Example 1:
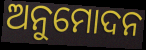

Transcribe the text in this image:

ଅନୁମୋଦନ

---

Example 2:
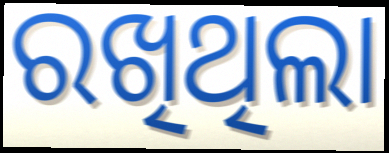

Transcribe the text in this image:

ରଖିଥିଲା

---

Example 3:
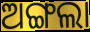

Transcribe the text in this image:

ଅଙ୍ଗଲା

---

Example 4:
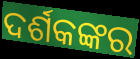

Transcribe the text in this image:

ଦର୍ଶକଙ୍କର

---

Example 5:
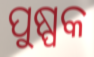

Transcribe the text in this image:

ପୁଷ୍ପକ